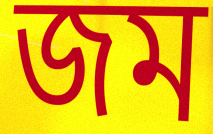
জম